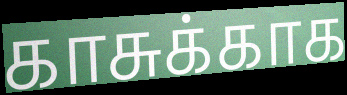
காசுக்காக